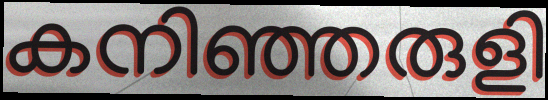
കനിഞ്ഞരുളി